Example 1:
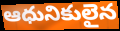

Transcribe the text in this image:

ఆధునికులైన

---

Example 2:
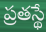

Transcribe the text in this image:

ప్రతస్థే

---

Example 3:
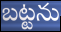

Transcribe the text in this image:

బట్టను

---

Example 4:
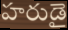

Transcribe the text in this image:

హరుడై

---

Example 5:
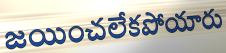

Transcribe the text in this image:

జయించలేకపోయారు